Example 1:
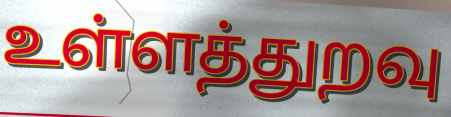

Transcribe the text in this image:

உள்ளத்துறவு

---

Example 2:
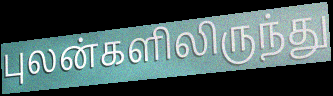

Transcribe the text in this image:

புலன்களிலிருந்து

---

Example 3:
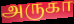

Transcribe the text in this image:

அருகா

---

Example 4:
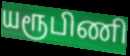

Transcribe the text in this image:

யரூபிணி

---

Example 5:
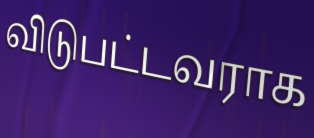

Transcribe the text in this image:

விடுபட்டவராக